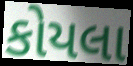
કોયલા